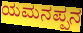
ಯಮನಪ್ಪನ